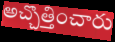
అచ్చొత్తించారు